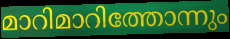
മാറിമാറിത്തോന്നും